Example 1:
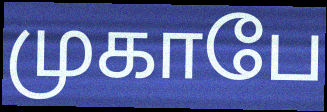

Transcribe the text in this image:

முகாபே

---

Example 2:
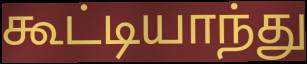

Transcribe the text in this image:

கூட்டியாந்து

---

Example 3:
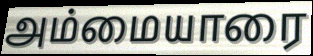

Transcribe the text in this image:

அம்மையாரை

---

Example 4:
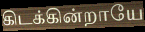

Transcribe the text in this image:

கிடக்கின்றாயே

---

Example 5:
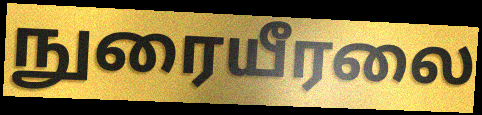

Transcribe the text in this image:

நுரையீரலை